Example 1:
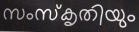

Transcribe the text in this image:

സംസ്കൃതിയും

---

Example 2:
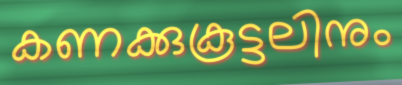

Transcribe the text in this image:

കണക്കുകൂട്ടലിനും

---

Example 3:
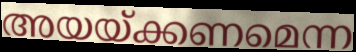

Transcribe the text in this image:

അയയ്ക്കണമെന്ന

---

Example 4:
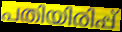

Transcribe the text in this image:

പതിയിരിപ്പ്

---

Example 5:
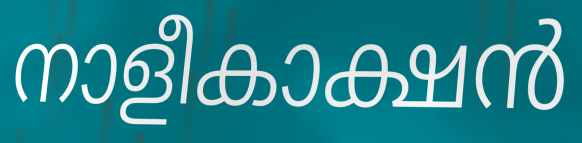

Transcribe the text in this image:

നാളീകാക്ഷൻ